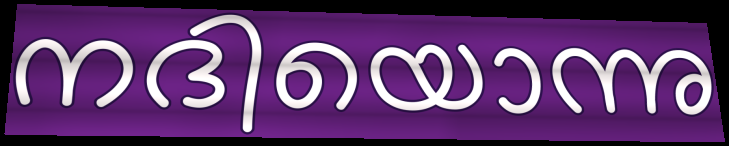
നദിയൊന്നു